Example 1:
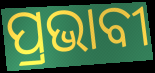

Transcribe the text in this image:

ପ୍ରଭାବୀ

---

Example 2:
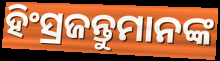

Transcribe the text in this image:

ହିଂସ୍ରଜନ୍ତୁମାନଙ୍କ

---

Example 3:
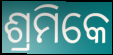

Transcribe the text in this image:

ଶ୍ରମିକେ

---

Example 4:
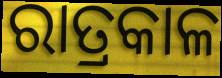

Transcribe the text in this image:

ରାତ୍ରକାଳ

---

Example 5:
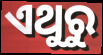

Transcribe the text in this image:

ଏଥୁରୁ